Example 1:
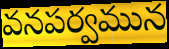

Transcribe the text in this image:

వనపర్వమున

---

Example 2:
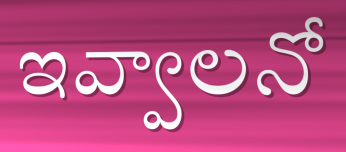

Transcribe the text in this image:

ఇవ్వాలనో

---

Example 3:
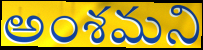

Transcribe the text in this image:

అంశమని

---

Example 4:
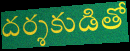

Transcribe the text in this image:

దర్శకుడితో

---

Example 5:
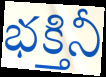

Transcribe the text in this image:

భక్తినీ